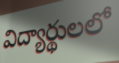
విద్యార్థులలో